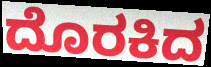
ದೊರಕಿದ